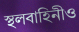
স্থলবাহিনীও